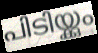
പിടിയ്ക്കും